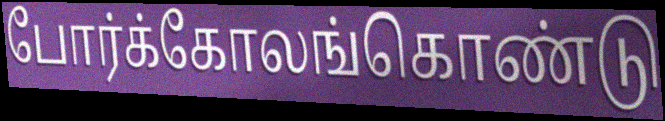
போர்க்கோலங்கொண்டு